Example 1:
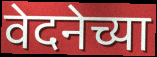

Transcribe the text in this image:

वेदनेच्या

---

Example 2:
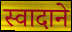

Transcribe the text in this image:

स्वादाने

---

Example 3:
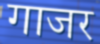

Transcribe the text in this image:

गाजर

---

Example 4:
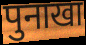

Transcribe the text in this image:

पुनाखा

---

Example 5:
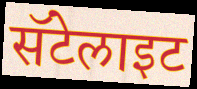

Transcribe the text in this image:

सॅटेलाइट